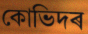
কোভিদৰ